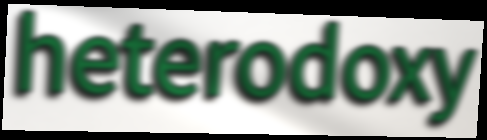
heterodoxy